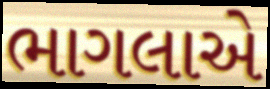
ભાગલાએ